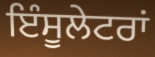
ਇੰਸੂਲੇਟਰਾਂ